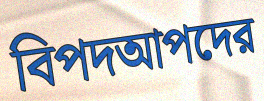
বিপদআপদের